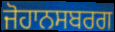
ਜੋਹਾਨਸਬਰਗ